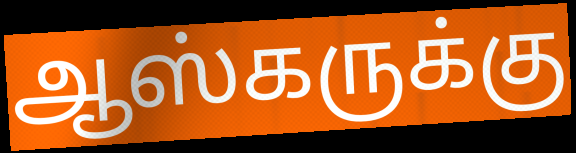
ஆஸ்கருக்கு